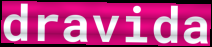
dravida